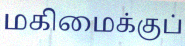
மகிமைக்குப்